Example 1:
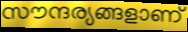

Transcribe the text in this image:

സൗന്ദര്യങ്ങളാണ്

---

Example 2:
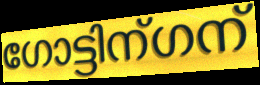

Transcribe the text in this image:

ഗോട്ടിന്ഗന്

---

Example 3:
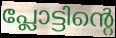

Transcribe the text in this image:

പ്ലോട്ടിന്റെ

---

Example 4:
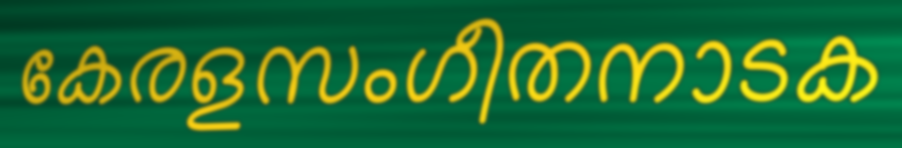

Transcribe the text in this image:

കേരളസംഗീതനാടക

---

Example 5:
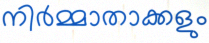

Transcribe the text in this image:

നിർമ്മാതാക്കളും